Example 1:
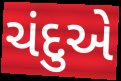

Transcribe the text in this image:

ચંદુએ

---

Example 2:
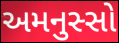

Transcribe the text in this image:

અમનુસ્સો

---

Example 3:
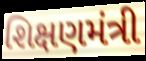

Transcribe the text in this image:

શિક્ષણમંત્રી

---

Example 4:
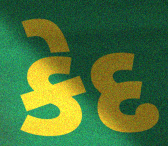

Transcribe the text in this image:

કેદ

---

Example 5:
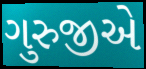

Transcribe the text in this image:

ગુરુજીએ